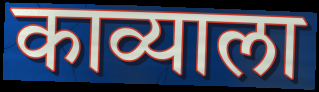
काव्याला